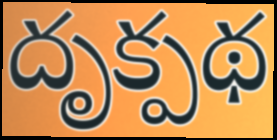
దృక్పథ